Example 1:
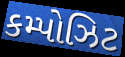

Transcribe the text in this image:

કમ્પોઝિટ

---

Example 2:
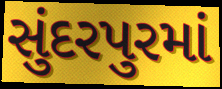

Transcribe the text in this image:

સુંદરપુરમાં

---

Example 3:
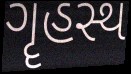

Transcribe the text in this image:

ગૄહસ્થ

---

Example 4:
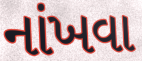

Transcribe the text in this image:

નાંખવા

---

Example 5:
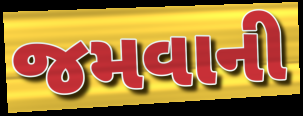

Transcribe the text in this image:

જમવાની